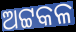
ଅଟ୍ଟକଳ